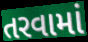
તરવામાં